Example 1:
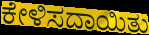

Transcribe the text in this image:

ಕೇಳಿಸದಾಯಿತು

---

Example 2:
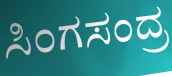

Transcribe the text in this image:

ಸಿಂಗಸಂದ್ರ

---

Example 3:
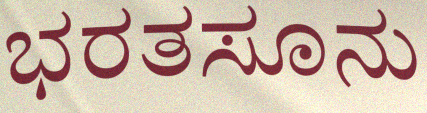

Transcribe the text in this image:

ಭರತಸೂನು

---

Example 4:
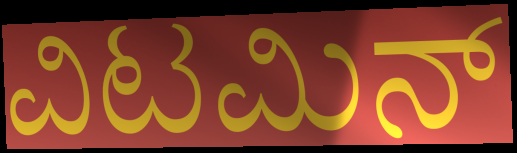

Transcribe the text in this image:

ವಿಟಮಿನ್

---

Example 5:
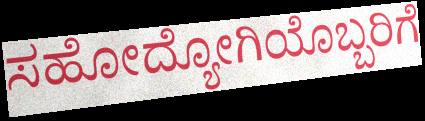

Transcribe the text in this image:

ಸಹೋದ್ಯೋಗಿಯೊಬ್ಬರಿಗೆ